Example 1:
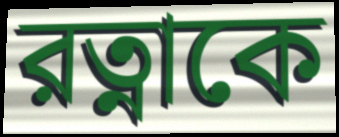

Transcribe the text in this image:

রত্নাকে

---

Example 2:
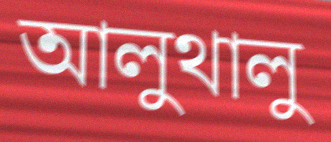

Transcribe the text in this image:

আলুথালু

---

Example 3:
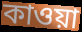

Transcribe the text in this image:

কাওয়া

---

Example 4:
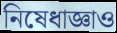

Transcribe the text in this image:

নিষেধাজ্ঞাও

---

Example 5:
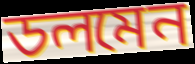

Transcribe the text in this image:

ডলমেন